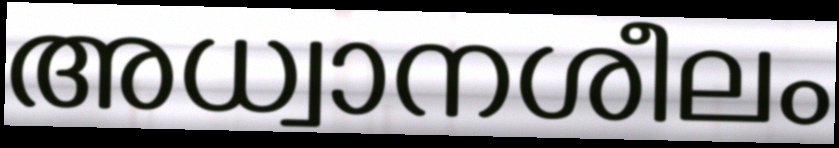
അധ്വാനശീലം